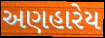
અણહારેય